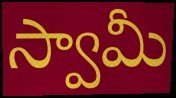
స్వామీ